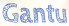
Gantu